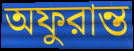
অফুরান্ত